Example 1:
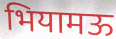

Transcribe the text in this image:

भियामऊ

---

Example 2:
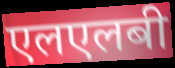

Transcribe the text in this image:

एलएलबी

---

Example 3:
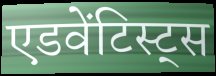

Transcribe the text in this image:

एडवेंटिस्ट्स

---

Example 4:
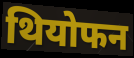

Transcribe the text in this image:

थियोफन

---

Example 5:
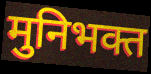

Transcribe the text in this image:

मुनिभक्त